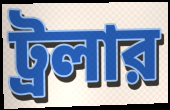
ট্রলার